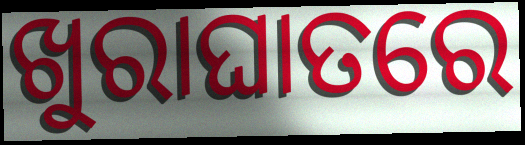
ଖୁରାଘାତରେ